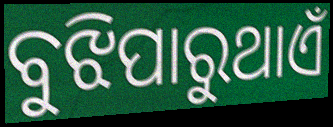
ବୁଝିପାରୁଥାଏଁ